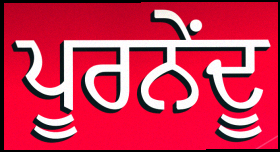
ਪੂਰਨੇਂਦੂ